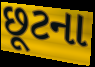
છૂટના